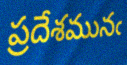
ప్రదేశమునఁ